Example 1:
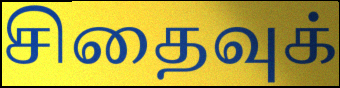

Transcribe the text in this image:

சிதைவுக்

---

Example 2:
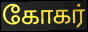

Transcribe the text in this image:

கோகர்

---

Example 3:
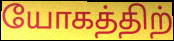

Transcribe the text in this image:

யோகத்திற்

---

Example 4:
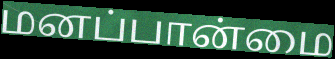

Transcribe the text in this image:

மனப்பான்மை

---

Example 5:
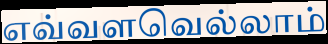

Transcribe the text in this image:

எவ்வளவெல்லாம்